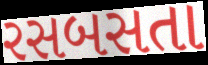
રસબસતા